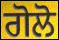
ਗੋਲੋ